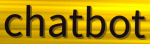
chatbot